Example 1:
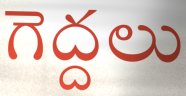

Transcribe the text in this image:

గెద్దలు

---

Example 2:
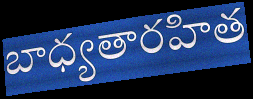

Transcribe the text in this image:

బాధ్యతారహిత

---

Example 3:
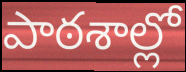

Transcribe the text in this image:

పాఠశాల్లో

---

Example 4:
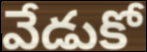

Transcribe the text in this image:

వేడుకో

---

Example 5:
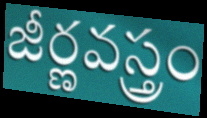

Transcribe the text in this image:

జీర్ణవస్త్రం